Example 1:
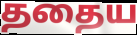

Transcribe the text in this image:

ததைய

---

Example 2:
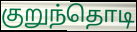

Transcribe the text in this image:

குறுந்தொடி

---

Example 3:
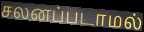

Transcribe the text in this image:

சலனப்படாமல்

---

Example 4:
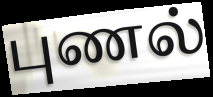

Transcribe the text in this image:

புணல்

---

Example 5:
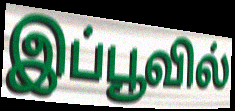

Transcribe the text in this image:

இப்பூவில்